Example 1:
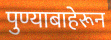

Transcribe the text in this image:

पुण्याबाहेरून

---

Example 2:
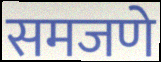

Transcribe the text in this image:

समजणे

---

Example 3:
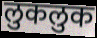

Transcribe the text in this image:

लुकलुक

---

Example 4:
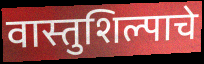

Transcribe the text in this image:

वास्तुशिल्पाचे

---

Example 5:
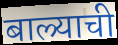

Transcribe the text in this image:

बाल्याची